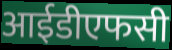
आईडीएफसी